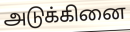
அடுக்கினை